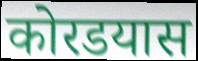
कोरडयास